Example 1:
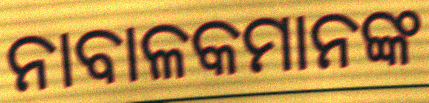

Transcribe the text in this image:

ନାବାଳକମାନଙ୍କ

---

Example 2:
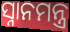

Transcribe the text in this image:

ସ୍ନାନମନ୍ତ୍ର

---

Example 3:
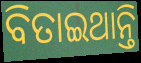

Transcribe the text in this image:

ବିତାଇଥାନ୍ତି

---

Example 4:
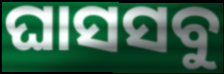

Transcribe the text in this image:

ଘାସସବୁ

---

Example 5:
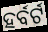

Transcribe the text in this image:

ହର୍ବର୍ଟ